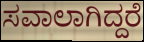
ಸವಾಲಾಗಿದ್ದರೆ